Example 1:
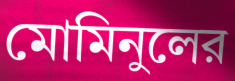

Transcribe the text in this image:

মোমিনুলের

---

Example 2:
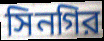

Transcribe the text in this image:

সিনগির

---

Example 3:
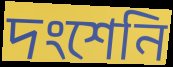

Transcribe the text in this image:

দংশেনি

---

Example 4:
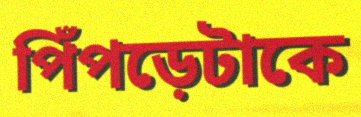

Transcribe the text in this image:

পিঁপড়েটাকে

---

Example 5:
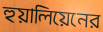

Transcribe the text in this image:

হুয়ালিয়েনের